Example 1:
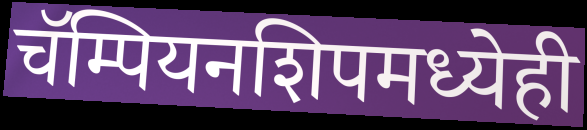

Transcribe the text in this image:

चॅम्पियनशिपमध्येही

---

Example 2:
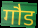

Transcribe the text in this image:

गौड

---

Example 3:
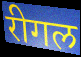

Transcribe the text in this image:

रीगल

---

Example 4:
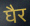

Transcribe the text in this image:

घैर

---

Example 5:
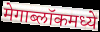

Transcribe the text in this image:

मेगाब्लॉकमध्ये